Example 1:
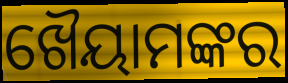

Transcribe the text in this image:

ଖୈୟାମଙ୍କର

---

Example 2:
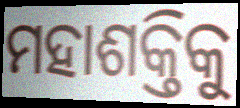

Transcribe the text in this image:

ମହାଶକ୍ତିକୁ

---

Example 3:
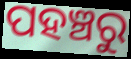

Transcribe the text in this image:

ପହଞ୍ଚରୁ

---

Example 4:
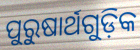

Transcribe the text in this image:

ପୁରୁଷାର୍ଥଗୁଡ଼ିକ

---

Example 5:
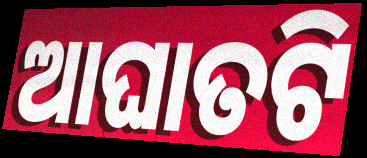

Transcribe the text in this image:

ଆଘାତଟି